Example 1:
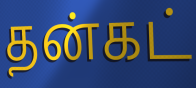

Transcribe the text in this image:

தன்கட்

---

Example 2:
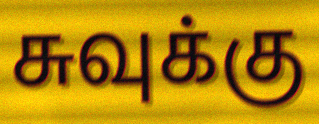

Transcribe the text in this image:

சுவுக்கு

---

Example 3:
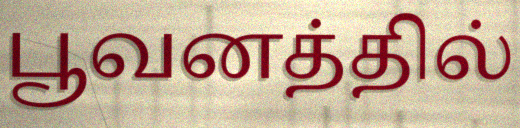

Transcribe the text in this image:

பூவனத்தில்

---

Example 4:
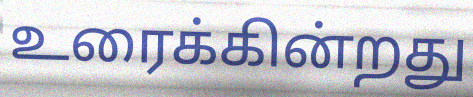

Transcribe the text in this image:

உரைக்கின்றது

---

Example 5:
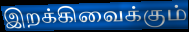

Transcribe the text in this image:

இறக்கிவைக்கும்